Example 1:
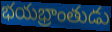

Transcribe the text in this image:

భయభ్రాంతుడు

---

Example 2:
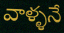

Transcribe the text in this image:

వాళ్ళనే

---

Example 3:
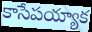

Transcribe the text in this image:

కాసేపయ్యాక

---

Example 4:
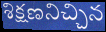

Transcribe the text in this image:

శిక్షణనిచ్చిన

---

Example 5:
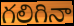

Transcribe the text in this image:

గలిగినా